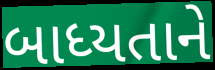
બાધ્યતાને